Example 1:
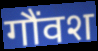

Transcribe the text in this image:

गौंवश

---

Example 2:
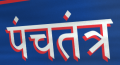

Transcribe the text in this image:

पंचतंत्र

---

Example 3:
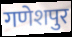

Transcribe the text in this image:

गणेशपुर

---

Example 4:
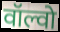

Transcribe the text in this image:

वॉल्‍वो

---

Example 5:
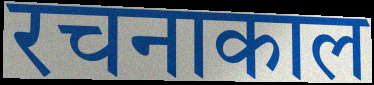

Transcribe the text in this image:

रचनाकाल